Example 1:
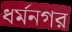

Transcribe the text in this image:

ধর্মনগর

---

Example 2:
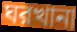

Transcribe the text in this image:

ঘরখানা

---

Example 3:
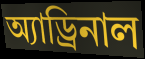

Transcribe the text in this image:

অ্যাড্রিনাল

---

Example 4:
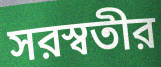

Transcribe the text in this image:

সরস্বতীর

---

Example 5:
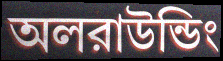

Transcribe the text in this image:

অলরাউন্ডিং